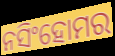
ନସିଂହୋମର